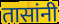
तासांनी